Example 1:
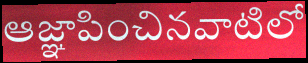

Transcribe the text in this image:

ఆజ్ఞాపించినవాటిలో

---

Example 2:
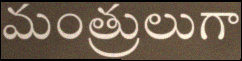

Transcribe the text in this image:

మంత్రులుగా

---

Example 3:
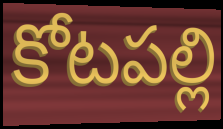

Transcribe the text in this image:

కోటపల్లి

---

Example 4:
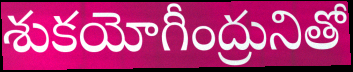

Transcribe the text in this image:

శుకయోగీంద్రునితో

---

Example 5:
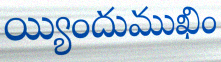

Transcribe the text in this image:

య్యిందుముఖిం